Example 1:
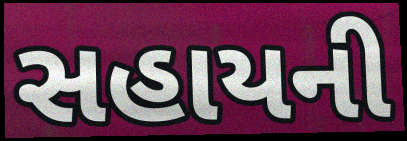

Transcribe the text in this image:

સહાયની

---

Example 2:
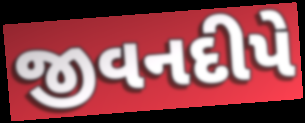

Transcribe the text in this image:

જીવનદીપે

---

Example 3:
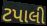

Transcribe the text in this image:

ટપાલી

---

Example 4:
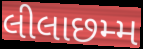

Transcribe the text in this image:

લીલાછમ્મ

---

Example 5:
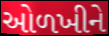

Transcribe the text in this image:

ઓળખીને